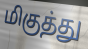
மிகுத்து